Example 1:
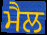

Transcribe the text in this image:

ਮੈਲ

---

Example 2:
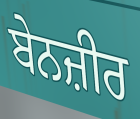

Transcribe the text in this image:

ਬੇਨਜ਼ੀਰ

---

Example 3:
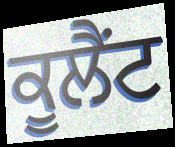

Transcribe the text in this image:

ਕੂਲੈਂਟ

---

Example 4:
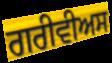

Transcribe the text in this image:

ਗਰੀਵੀਅਸ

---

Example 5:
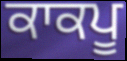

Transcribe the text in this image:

ਕਾਕਪੂ